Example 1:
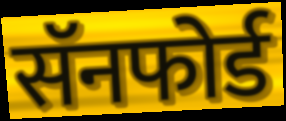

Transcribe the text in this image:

सॅनफोर्ड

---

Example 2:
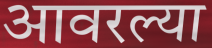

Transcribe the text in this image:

आवरल्या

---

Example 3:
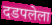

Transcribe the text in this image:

दडपलेला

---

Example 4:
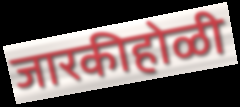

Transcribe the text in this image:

जारकीहोळी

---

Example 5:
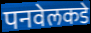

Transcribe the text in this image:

पनवेलकडे